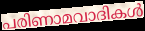
പരിണാമവാദികൾ